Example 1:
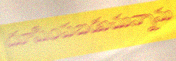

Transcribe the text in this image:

దూషింపబడుచున్నాను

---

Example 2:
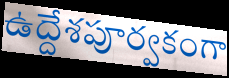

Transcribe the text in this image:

ఉద్దేశపూర్వకంగా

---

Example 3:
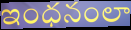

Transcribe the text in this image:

ఇంధనంలా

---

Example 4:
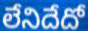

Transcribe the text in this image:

లేనిదేదో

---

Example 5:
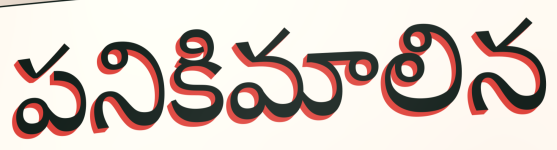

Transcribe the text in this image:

పనికిమాలిన